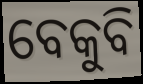
ବେକୁବି